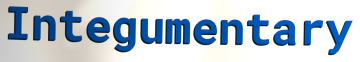
Integumentary